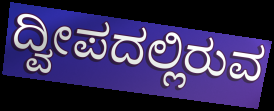
ದ್ವೀಪದಲ್ಲಿರುವ